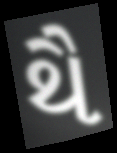
થૈ